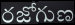
రజోగుణ